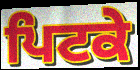
ਪਿਟਕੇ